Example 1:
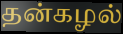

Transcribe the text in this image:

தன்கழல்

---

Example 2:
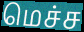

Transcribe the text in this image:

மெச்ச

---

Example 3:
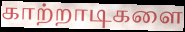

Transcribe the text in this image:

காற்றாடிகளை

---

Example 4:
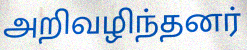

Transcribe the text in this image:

அறிவழிந்தனர்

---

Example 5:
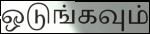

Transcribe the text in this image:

ஒடுங்கவும்